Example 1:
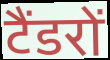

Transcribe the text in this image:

टैंडरों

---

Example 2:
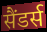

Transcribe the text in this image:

सैंडर्स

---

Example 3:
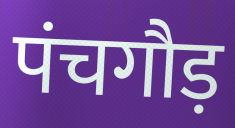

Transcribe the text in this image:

पंचगौड़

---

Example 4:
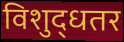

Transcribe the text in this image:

विशुद्धतर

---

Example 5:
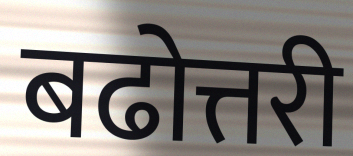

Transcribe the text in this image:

बढोत्तरी